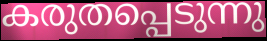
കരുതപ്പെടുന്നു